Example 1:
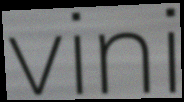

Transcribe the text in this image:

vini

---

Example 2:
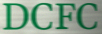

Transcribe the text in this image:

DCFC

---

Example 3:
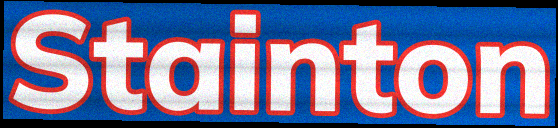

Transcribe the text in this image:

Stainton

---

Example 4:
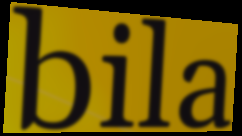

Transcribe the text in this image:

bila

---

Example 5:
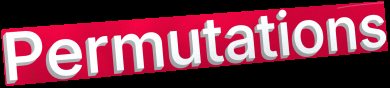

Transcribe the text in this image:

Permutations